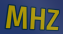
MHZ